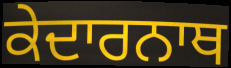
ਕੇਦਾਰਨਾਥ